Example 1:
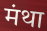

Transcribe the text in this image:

मंथा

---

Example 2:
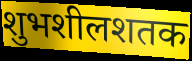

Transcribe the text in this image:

शुभशीलशतक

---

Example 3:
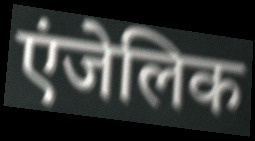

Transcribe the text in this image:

एंजेलिक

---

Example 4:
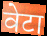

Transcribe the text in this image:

वेटा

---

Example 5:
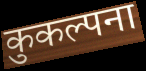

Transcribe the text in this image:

कुकल्पना